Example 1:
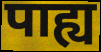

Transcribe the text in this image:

पाह्य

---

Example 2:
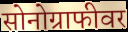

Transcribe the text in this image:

सोनोग्राफीवर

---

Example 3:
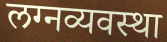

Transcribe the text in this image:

लग्नव्यवस्था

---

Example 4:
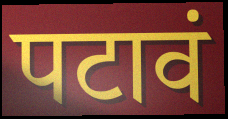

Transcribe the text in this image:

पटावं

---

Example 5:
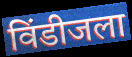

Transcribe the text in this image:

विंडीजला